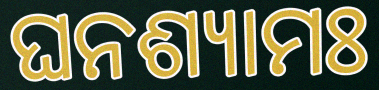
ଘନଶ୍ଯାମଃ